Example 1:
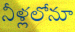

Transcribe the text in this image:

నీళ్లలోనూ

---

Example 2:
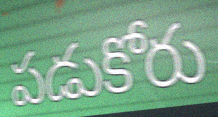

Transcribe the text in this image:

పడుకోరు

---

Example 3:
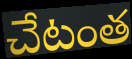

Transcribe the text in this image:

చేటంత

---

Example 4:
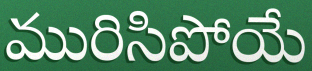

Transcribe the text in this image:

మురిసిపోయే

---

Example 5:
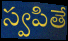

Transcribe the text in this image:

స్వపితే